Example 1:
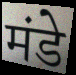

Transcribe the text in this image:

मंडे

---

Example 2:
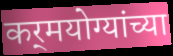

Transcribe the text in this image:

कर्मयोग्यांच्या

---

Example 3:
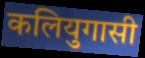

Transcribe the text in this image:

कलियुगासी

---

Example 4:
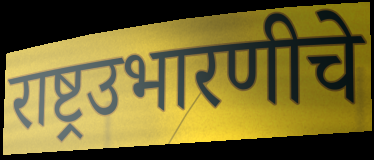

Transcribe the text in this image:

राष्ट्रउभारणीचे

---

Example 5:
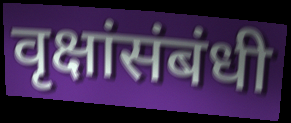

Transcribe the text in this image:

वृक्षांसंबंधी